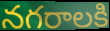
నగరాలకి